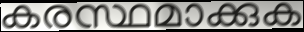
കരസ്ഥമാക്കുക